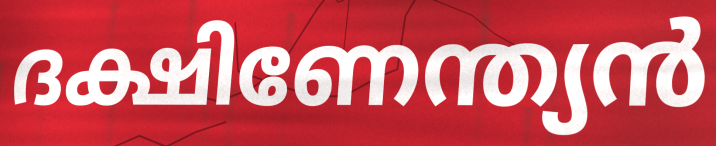
ദക്ഷിണേന്ത്യൻ